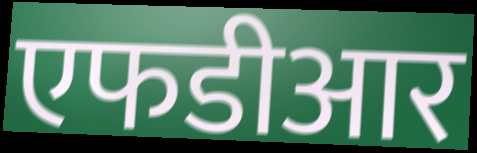
एफडीआर